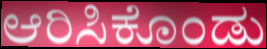
ಆರಿಸಿಕೊಂಡು